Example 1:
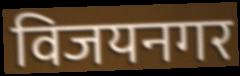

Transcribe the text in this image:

विजयनगर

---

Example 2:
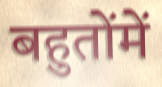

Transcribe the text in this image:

बहुतोंमें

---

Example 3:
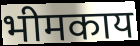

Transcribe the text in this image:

भीमकाय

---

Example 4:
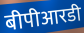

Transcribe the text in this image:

बीपीआरडी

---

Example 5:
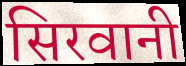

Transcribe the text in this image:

सिरवानी